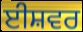
ਈਸ਼ਵਰ